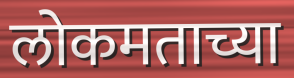
लोकमताच्या